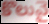
కొలువై